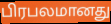
பிரபலமானது